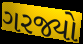
ગરજ્યો